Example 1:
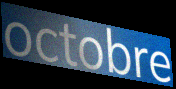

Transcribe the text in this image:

octobre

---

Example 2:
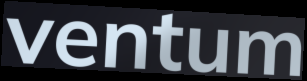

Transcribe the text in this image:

ventum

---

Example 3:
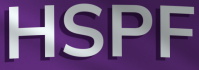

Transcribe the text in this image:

HSPF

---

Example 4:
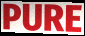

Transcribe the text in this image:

PURE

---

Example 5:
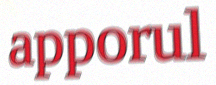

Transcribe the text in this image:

apporul